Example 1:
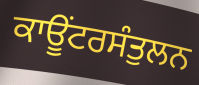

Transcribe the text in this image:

ਕਾਊਂਟਰਸੰਤੁਲਨ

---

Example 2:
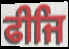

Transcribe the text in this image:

ਫੀਜਿ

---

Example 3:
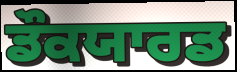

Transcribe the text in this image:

ਡੌਕਯਾਰਡ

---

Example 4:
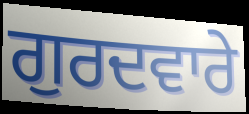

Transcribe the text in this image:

ਗੁਰਦਵਾਰੇ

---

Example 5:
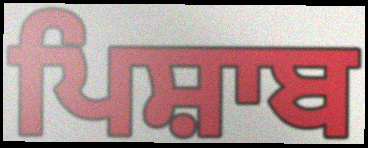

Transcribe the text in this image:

ਪਿਸ਼ਾਬ